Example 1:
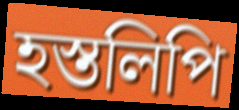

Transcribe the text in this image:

হস্তলিপি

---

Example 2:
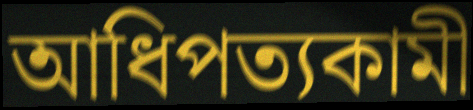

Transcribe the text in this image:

আধিপত্যকামী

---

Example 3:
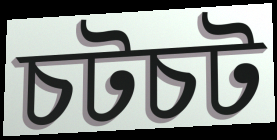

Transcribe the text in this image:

চটচট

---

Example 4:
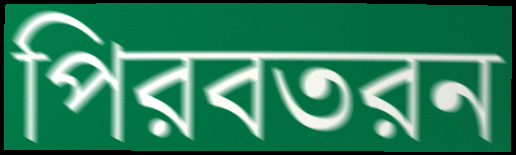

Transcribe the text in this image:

পিরবতরন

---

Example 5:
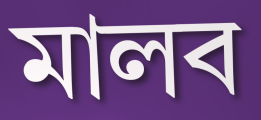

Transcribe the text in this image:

মালব